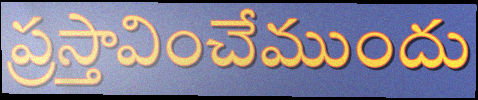
ప్రస్తావించేముందు